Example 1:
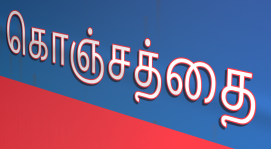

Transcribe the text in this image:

கொஞ்சத்தை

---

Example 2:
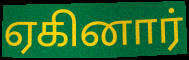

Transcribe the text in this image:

ஏகினார்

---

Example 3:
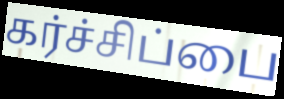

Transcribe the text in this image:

கர்ச்சிப்பை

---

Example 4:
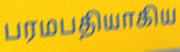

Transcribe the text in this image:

பரமபதியாகிய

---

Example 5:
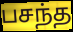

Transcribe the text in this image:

பசந்த